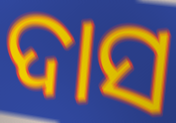
ଦାସ